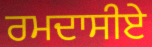
ਰਮਦਾਸੀਏ